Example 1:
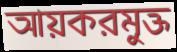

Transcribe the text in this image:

আয়করমুক্ত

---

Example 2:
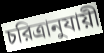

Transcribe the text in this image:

চরিত্রানুযায়ী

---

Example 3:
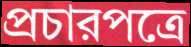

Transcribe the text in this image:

প্রচারপত্রে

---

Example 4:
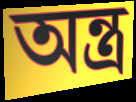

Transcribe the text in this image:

অন্ত্র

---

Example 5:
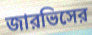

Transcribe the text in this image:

জারভিসের